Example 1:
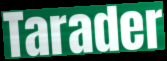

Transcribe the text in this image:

Tarader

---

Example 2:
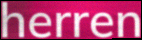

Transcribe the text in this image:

herren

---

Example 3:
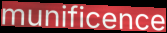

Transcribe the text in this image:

munificence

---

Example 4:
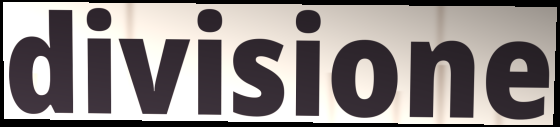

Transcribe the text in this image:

divisione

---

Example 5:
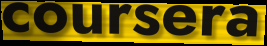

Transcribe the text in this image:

coursera